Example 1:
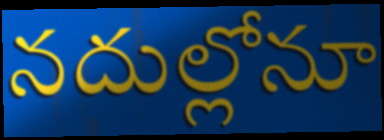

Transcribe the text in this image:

నదుల్లోనూ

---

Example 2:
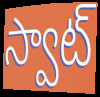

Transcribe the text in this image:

స్వాట్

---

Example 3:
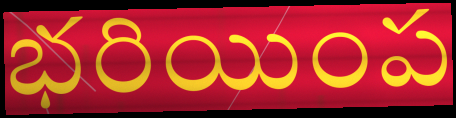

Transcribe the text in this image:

భరియింప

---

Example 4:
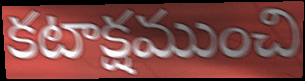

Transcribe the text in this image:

కటాక్షముంచి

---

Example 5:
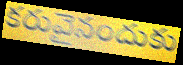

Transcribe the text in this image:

కరువైనందుకు